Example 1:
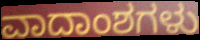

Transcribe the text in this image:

ವಾದಾಂಶಗಳು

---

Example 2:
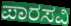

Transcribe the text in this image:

ಪಾರಸವಿ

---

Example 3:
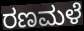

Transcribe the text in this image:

ರಣಮಳೆ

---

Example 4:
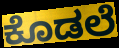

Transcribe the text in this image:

ಕೊಡಲೆ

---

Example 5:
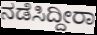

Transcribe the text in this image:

ನಡೆಸಿದ್ದೀರಾ